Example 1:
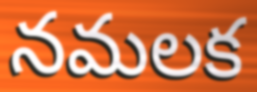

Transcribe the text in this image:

నమలక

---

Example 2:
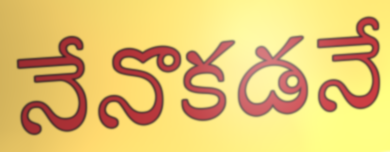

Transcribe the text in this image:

నేనొకడనే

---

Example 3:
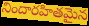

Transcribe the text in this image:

నిందారహితమైన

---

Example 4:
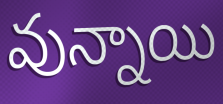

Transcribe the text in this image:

వున్నాయి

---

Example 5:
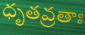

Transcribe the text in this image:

ధృతవ్రతాః